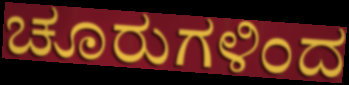
ಚೂರುಗಳಿಂದ